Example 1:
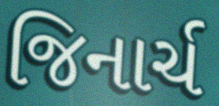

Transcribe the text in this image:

જિનાર્ચ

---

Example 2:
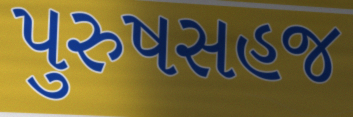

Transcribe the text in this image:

પુરુષસહજ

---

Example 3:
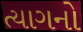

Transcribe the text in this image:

ત્યાગનો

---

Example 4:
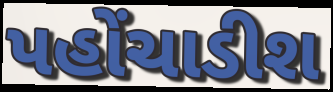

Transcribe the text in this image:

પહોંચાડીશ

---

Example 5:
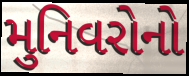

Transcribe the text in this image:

મુનિવરોનો